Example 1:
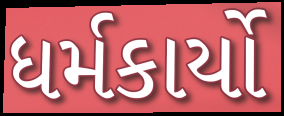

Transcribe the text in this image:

ધર્મકાર્યો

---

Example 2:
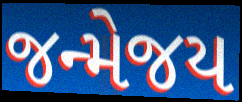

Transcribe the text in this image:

જન્મેજય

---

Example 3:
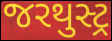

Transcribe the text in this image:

જરથુસ્ટ્ર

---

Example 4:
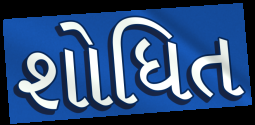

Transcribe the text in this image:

શોધિત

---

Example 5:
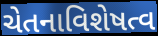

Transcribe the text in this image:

ચેતનાવિશેષત્વ